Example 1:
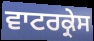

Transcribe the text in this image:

ਵਾਟਰਕ੍ਰੇਸ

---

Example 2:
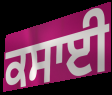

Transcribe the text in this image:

ਕਸਾਈ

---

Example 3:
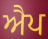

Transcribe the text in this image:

ਐਪ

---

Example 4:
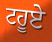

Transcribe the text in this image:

ਟਹੂਏ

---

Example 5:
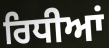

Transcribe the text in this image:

ਰਿਧੀਆਂ